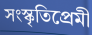
সংস্কৃতিপ্রেমী